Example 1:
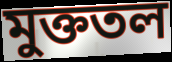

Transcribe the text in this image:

মুক্ততল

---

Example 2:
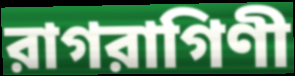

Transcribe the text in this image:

রাগরাগিণী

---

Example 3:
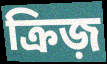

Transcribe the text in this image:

ক্রিজ়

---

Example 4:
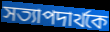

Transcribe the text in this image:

সত্যাপদার্থকে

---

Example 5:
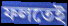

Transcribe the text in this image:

ফলতেই